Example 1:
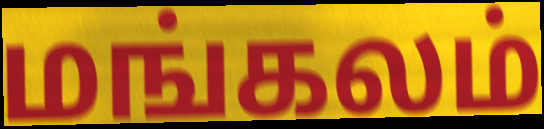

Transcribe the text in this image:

மங்கலம்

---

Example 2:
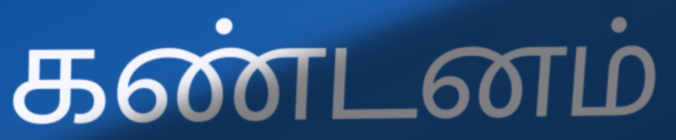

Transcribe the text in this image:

கண்டனம்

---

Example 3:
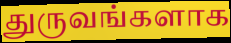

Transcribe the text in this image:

துருவங்களாக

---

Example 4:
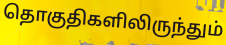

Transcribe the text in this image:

தொகுதிகளிலிருந்தும்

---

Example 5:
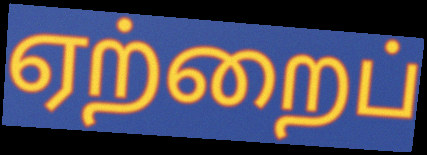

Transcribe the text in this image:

ஏற்றைப்